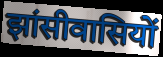
झांसीवासियों